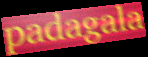
padagala